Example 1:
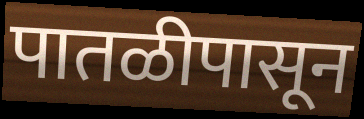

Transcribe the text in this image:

पातळीपासून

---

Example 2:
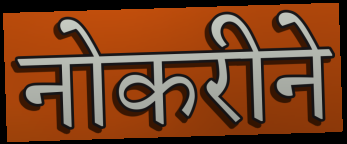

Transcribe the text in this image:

नोकरीने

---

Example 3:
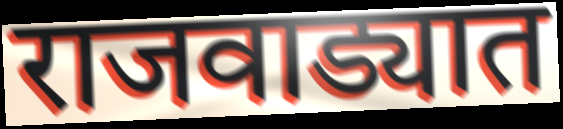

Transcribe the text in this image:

राजवाड्यात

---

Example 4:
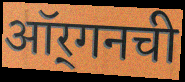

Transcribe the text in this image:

ऑर्गनची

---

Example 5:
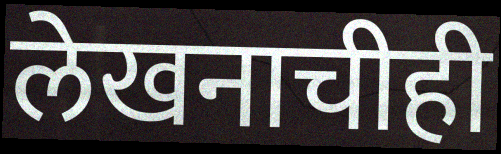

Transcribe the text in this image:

लेखनाचीही